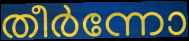
തീർന്നോ